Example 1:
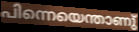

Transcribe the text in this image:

പിന്നെയെന്താണു്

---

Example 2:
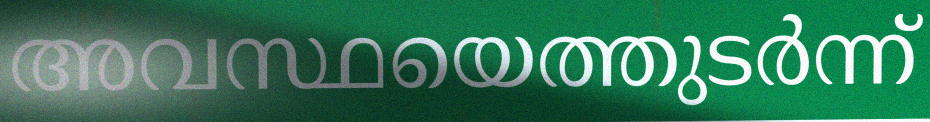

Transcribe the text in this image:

അവസ്ഥയെത്തുടർന്ന്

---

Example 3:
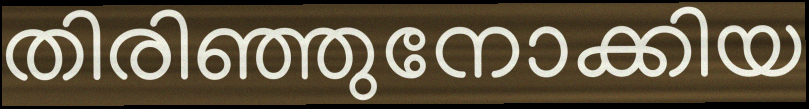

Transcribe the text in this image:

തിരിഞ്ഞുനോക്കിയ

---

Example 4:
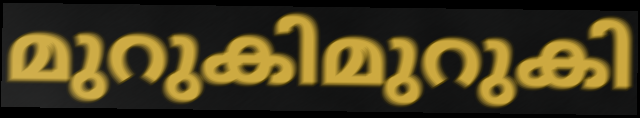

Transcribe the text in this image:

മുറുകിമുറുകി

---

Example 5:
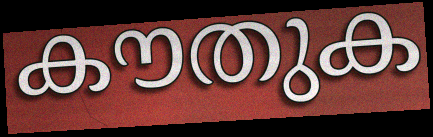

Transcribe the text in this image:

കൗതുക